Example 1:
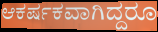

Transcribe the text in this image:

ಆಕರ್ಷಕವಾಗಿದ್ದರೂ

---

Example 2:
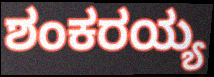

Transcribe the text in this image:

ಶಂಕರಯ್ಯ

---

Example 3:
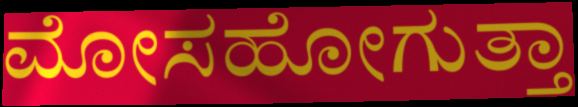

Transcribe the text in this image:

ಮೋಸಹೋಗುತ್ತಾ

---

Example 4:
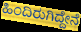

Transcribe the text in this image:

ಹಿಂದಿರುಗಿದ್ದೇನೆ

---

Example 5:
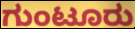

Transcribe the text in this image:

ಗುಂಟೂರು